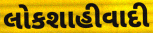
લોકશાહીવાદી